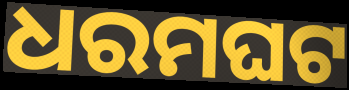
ଧରମଘଟ